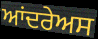
ਆਂਦਰੇਅਸ